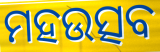
ମହଉତ୍ସବ